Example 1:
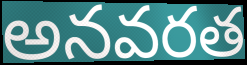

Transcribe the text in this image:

అనవరత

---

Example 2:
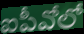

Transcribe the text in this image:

ఐపీవోలో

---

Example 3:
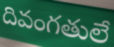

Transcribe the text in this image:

దివంగతులే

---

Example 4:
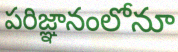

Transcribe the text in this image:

పరిజ్ఞానంలోనూ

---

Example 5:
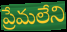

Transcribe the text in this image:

ప్రేమలేని